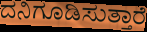
ದನಿಗೂಡಿಸುತ್ತಾರೆ